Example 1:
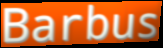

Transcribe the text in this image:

Barbus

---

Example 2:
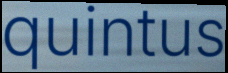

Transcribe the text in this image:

quintus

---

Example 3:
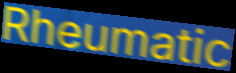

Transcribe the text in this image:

Rheumatic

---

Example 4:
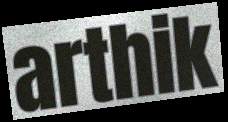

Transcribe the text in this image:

arthik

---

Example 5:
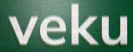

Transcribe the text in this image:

veku